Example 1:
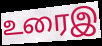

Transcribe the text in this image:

உரைஇ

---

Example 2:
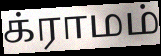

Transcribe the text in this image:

க்ராமம்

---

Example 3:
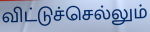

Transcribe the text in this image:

விட்டுச்செல்லும்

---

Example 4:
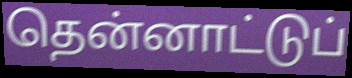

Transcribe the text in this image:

தென்னாட்டுப்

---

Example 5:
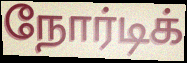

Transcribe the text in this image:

நோர்டிக்